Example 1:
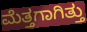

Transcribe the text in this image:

ಮೆತ್ತಗಾಗಿತ್ತು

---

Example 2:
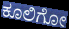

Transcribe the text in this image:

ಕೂಲಿಗೋ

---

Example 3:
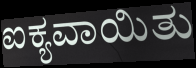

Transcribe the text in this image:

ಐಕ್ಯವಾಯಿತು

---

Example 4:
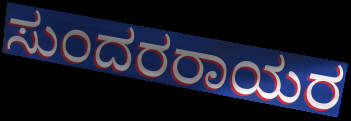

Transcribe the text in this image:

ಸುಂದರರಾಯರ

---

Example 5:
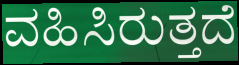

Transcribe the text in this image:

ವಹಿಸಿರುತ್ತದೆ